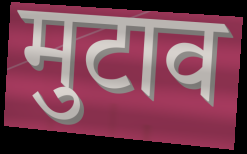
मुटाव